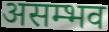
असम्भव